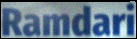
Ramdari